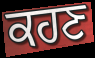
ਕਹਣ